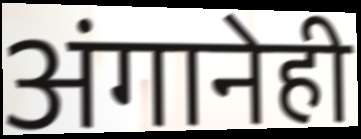
अंगानेही